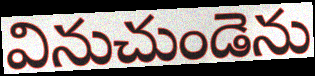
వినుచుండెను